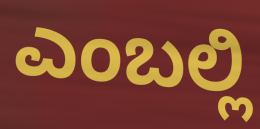
ಎಂಬಲ್ಲಿ